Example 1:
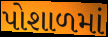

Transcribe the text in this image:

પોશાળમાં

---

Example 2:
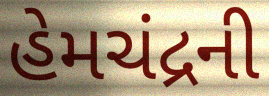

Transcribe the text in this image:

હેમચંદ્રની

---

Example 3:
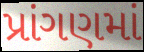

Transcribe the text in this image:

પ્રાંગણમાં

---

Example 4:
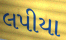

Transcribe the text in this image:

લપીયા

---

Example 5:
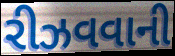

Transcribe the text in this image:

રીઝવવાની